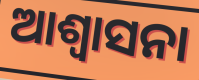
ଆଶ୍ୱାସନା